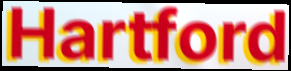
Hartford